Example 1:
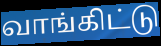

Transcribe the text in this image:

வாங்கிட்டு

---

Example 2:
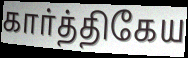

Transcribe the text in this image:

கார்த்திகேய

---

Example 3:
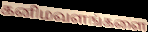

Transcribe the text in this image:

கனிமவளங்களை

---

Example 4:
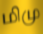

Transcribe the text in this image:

மிமு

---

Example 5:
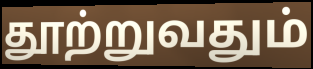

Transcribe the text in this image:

தூற்றுவதும்